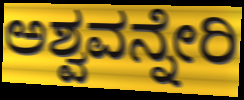
ಅಶ್ವವನ್ನೇರಿ